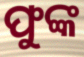
ଫୁଙ୍କ